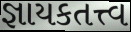
જ્ઞાયકતત્ત્વ